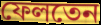
ফেলতেন